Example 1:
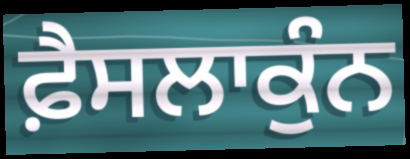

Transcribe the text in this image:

ਫ਼ੈਸਲਾਕੁੰਨ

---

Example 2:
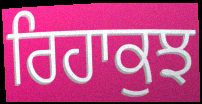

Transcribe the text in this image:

ਰਿਹਾਕੁਝ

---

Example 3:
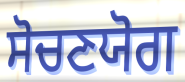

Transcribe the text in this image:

ਸੋਚਣਯੋਗ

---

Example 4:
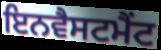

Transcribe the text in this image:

ਇਨਵੈਸਟਮੈਂਟ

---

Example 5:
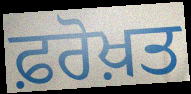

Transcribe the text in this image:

ਫ਼ਰੋਖ਼ਤ